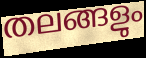
തലങ്ങളും